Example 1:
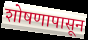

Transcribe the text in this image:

शोषणापासून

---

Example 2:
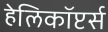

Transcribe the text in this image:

हेलिकॉप्टर्स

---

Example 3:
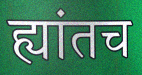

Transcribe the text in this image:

ह्यांतच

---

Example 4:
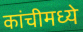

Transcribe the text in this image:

कांचीमध्ये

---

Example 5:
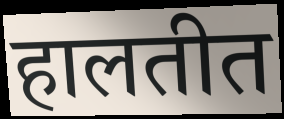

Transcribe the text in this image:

हालतीत